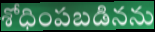
శోధింపబడినను